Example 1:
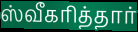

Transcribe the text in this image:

ஸ்வீகரித்தார்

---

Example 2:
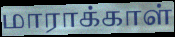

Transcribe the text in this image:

மாராக்காள்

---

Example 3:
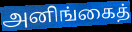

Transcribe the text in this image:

அனிங்கைத்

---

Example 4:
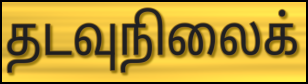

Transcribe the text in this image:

தடவுநிலைக்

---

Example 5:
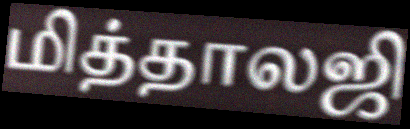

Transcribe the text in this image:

மித்தாலஜி